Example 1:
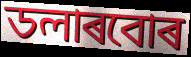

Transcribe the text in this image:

ডলাৰবোৰ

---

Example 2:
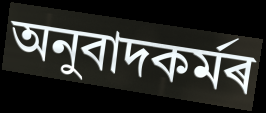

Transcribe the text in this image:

অনুবাদকৰ্মৰ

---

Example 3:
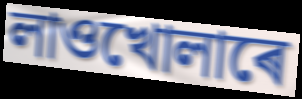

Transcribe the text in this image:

লাওখোলাৰে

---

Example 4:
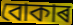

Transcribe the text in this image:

বোকাৰ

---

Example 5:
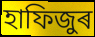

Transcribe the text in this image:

হাফিজুৰ